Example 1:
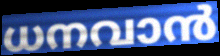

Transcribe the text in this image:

ധനവാൻ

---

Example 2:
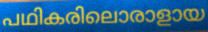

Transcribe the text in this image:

പഥികരിലൊരാളായ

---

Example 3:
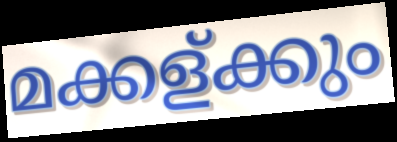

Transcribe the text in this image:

മക്കള്ക്കും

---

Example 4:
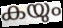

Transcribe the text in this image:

കയും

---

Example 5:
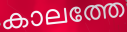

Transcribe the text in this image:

കാലത്തേ